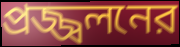
প্রজ্জ্বলনের